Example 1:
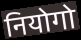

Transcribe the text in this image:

नियोगो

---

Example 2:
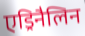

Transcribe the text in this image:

एड्रिनैलिन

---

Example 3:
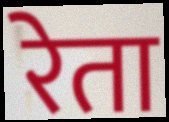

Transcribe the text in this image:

रेता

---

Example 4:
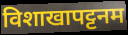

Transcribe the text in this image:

विशाखापट्टनम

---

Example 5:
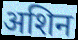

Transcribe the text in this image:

अशिन